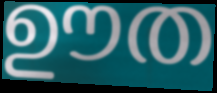
ഊത